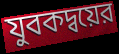
যুবকদ্বয়ের